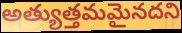
అత్యుత్తమమైనదని